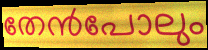
തേൻപോലും